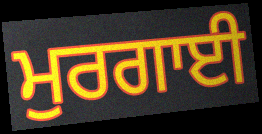
ਮੁਰਗਾਈ